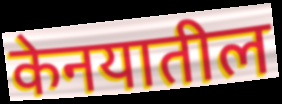
केनयातील